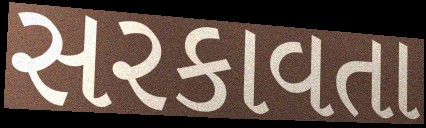
સરકાવતા